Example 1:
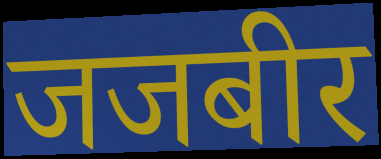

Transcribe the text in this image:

जजबीर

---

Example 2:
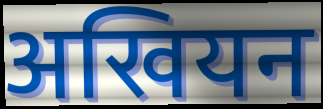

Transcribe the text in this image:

अखियन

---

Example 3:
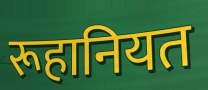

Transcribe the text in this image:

रूहानियत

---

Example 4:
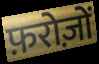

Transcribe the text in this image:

फ़रोज़ों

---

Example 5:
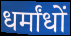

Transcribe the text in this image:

धर्मांधों